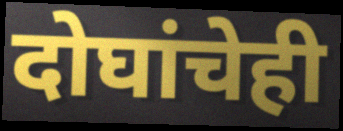
दोघांचेही